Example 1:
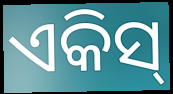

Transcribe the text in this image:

ଏକିସ୍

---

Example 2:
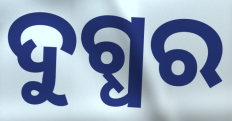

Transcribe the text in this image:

ଦୁଗ୍ଧର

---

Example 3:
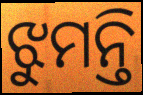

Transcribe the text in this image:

ଝୁମନ୍ତି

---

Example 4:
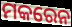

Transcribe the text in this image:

ମକରେନ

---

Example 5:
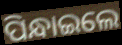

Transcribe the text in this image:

ପିନ୍ଧାଇଲେ